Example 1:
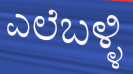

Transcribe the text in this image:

ಎಲೆಬಳ್ಳಿ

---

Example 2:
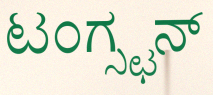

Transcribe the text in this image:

ಟಂಗ್ಸ್ಟನ್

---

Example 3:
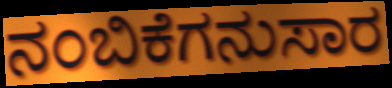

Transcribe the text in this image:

ನಂಬಿಕೆಗನುಸಾರ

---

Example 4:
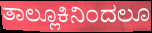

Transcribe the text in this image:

ತಾಲ್ಲೂಕಿನಿಂದಲೂ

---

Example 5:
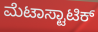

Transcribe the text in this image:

ಮೆಟಾಸ್ಟಾಟಿಕ್